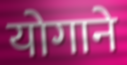
योगाने